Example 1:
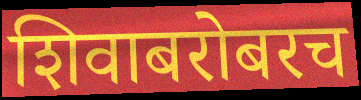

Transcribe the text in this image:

शिवाबरोबरच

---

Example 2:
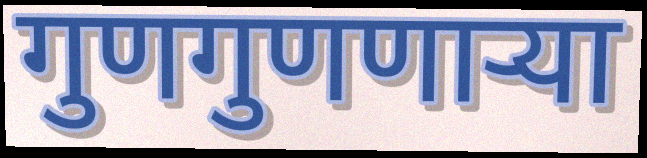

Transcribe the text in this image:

गुणगुणणाऱ्या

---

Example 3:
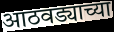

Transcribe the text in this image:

आठवड्याच्या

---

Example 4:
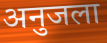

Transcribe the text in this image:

अनुजला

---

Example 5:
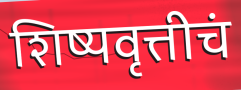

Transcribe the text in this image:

शिष्यवृत्तीचं